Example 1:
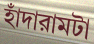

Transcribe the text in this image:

হাঁদারামটা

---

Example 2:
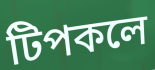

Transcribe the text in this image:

টিপকলে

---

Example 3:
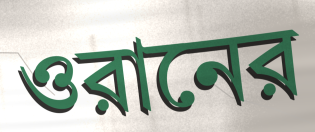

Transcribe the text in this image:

ওরানের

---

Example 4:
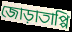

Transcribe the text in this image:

জোড়াতাপ্পি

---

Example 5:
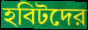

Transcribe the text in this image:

হবিটদের